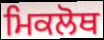
ਮਿਕਲੋਥ